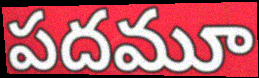
పదమూ